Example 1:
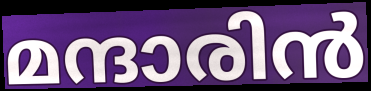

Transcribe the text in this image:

മന്ദാരിൻ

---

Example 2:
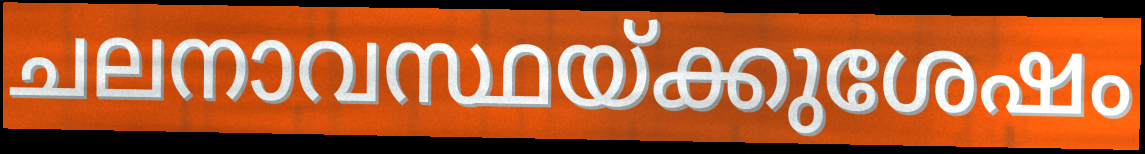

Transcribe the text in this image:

ചലനാവസ്ഥയ്ക്കുശേഷം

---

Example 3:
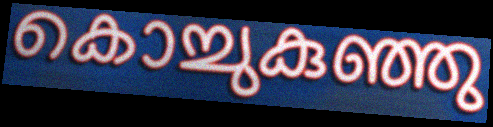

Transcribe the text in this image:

കൊച്ചുകുഞ്ഞു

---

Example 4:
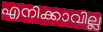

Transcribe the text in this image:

എനിക്കാവില്ല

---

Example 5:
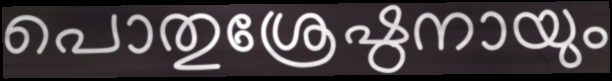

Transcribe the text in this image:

പൊതുശ്രേഷ്ഠനായും